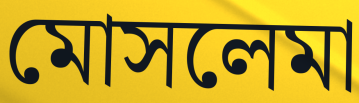
মোসলেমা